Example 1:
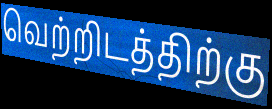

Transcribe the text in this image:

வெற்றிடத்திற்கு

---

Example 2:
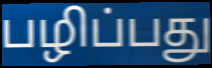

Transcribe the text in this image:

பழிப்பது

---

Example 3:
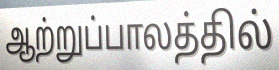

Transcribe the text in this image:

ஆற்றுப்பாலத்தில்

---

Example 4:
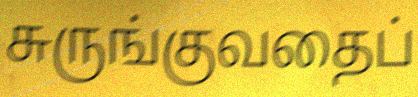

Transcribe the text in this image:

சுருங்குவதைப்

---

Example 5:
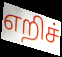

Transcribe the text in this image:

எறிச்